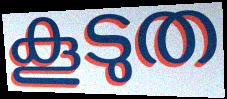
കൂടുത